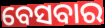
ବେସବାର